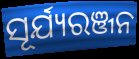
ସୂର୍ଯ୍ୟରଞ୍ଜନ